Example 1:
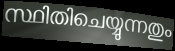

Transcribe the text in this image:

സ്ഥിതിചെയ്യുന്നതും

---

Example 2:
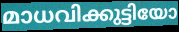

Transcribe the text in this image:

മാധവിക്കുട്ടിയോ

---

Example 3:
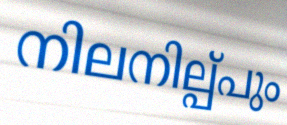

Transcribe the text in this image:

നിലനില്പ്പും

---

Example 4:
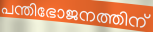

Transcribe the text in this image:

പന്തിഭോജനത്തിന്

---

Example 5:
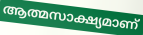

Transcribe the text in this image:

ആത്മസാക്ഷ്യമാണ്